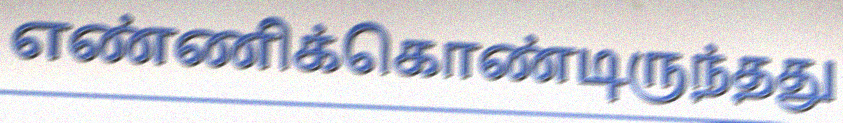
எண்ணிக்கொண்டிருந்தது